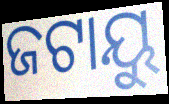
ଜଟାୟୁ